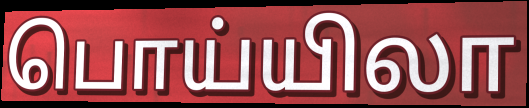
பொய்யிலா